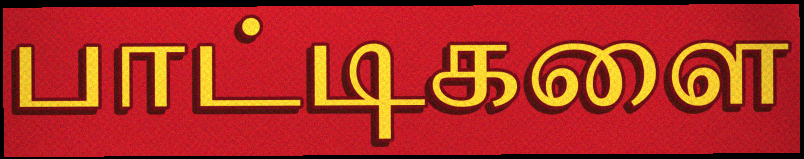
பாட்டிகளை